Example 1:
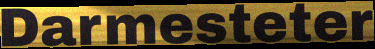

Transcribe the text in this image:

Darmesteter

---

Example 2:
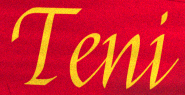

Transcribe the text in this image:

Teni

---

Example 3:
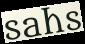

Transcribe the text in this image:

sahs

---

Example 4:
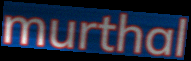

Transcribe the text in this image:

murthal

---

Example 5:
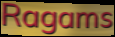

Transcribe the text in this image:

Ragams